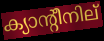
ക്യാന്റീനില്